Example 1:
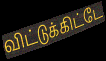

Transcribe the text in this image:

விட்டுக்கிட்டே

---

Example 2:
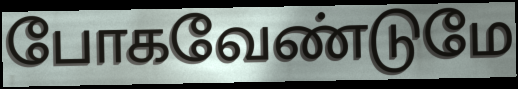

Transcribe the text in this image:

போகவேண்டுமே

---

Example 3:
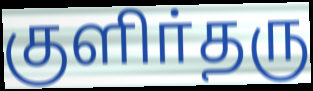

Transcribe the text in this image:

குளிர்தரு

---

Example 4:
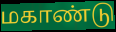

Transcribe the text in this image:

மகாண்டு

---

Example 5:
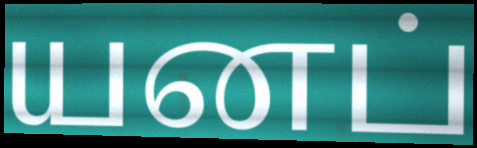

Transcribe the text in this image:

யனப்